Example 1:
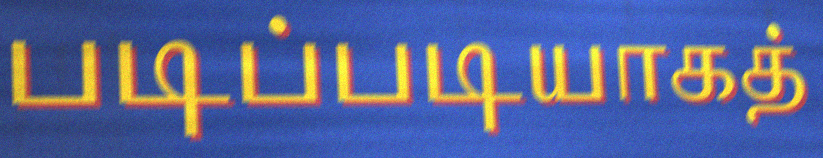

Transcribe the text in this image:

படிப்படியாகத்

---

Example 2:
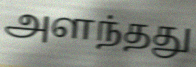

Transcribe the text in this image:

அளந்தது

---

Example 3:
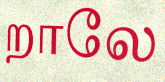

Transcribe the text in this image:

றாலே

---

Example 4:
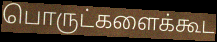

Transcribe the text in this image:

பொருட்களைக்கூட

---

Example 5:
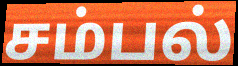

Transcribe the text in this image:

சம்பல்